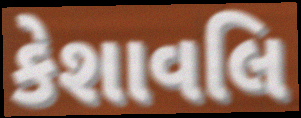
કેશાવલિ